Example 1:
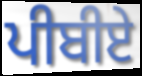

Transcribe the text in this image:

ਪੀਬੀਏ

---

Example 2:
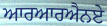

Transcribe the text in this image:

ਆਰਆਰਐਨਏ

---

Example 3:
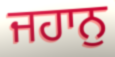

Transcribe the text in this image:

ਜਹਾਨੁ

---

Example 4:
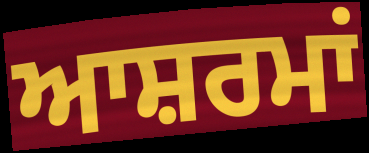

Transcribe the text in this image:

ਆਸ਼ਰਮਾਂ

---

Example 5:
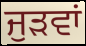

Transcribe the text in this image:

ਜੁੜਵਾਂ